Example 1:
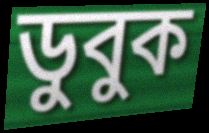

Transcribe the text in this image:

ডুবুক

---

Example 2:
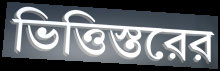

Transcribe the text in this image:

ভিত্তিস্তরের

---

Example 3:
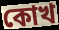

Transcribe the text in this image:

কোখ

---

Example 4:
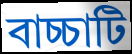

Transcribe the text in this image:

বাচ্চাটি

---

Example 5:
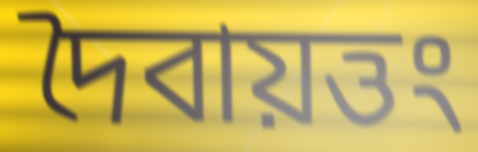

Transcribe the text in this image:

দৈবায়ত্তং